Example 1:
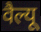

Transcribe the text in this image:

वैल्यू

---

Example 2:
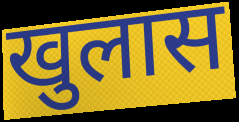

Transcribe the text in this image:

खुलास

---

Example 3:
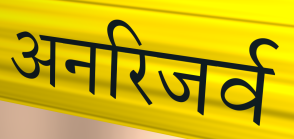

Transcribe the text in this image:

अनरिजर्व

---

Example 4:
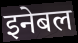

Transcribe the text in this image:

इनेबल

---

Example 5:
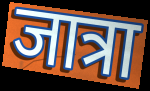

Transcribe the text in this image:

जात्रा